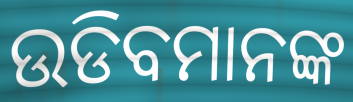
ଉଡିବମାନଙ୍କ